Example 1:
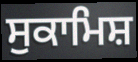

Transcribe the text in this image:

ਸੁਕਾਮਿਸ਼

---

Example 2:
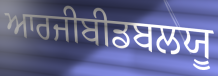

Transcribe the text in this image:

ਆਰਜੀਬੀਡਬਲਯੂ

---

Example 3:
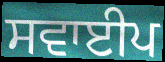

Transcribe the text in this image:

ਸਵਾਈਪ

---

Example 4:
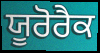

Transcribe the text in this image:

ਯੂਰੋਰੈਕ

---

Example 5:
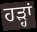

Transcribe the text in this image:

ਹੜ੍ਹਾਂ